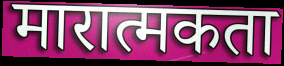
मारात्मकता